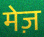
मेज़